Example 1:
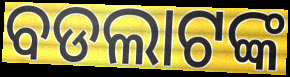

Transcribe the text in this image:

ବଡଲାଟଙ୍କ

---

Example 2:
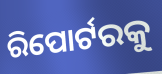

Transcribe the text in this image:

ରିପୋର୍ଟରକୁ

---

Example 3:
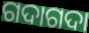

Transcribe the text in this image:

ଗଦାଗଦା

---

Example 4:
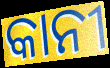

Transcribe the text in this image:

କାନୀ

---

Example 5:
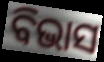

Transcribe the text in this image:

ବିଭାସ